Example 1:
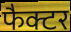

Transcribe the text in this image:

फैक्टर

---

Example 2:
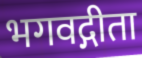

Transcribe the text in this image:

भगवद्गीता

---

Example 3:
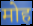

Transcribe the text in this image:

मोह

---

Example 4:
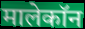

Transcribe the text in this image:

मालेकॉन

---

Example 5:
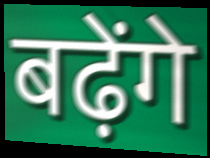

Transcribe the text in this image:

बढ़ेंगे